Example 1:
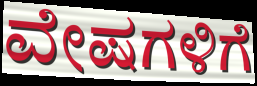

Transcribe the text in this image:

ವೇಷಗಳಿಗೆ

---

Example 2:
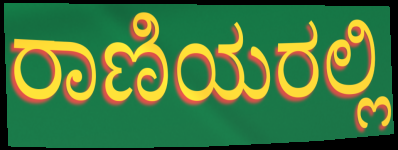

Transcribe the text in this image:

ರಾಣಿಯರಲ್ಲಿ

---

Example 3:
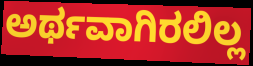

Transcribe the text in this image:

ಅರ್ಥವಾಗಿರಲಿಲ್ಲ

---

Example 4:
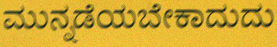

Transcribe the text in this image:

ಮುನ್ನಡೆಯಬೇಕಾದುದು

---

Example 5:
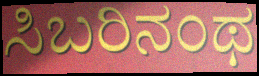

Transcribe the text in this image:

ಸಿಬರಿನಂಥ